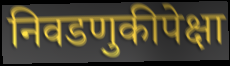
निवडणुकीपेक्षा